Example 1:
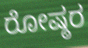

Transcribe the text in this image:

ರೋಷ್ಠರ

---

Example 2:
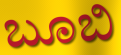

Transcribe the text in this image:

ಬೂಬಿ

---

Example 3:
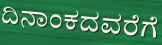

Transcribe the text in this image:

ದಿನಾಂಕದವರೆಗೆ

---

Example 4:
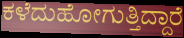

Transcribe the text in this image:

ಕಳೆದುಹೋಗುತ್ತಿದ್ದಾರೆ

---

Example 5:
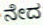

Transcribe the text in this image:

ನೇದ